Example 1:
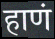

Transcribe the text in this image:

हाणं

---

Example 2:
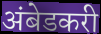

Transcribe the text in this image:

अंबेडकरी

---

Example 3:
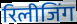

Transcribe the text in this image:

रिलीजिंग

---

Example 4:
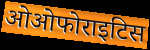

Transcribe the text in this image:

ओओफोराइटिस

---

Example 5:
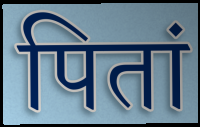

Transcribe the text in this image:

पितां